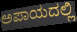
ಅಪಾಯದಲ್ಲಿ